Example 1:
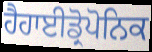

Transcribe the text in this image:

ਹੈਹਾਈਡ੍ਰੋਪੋਨਿਕ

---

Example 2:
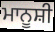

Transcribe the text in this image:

ਮਾਨੂਸ਼ੀ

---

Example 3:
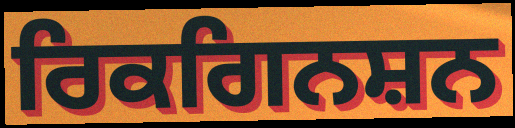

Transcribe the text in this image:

ਰਿਕਗਿਨਸ਼ਨ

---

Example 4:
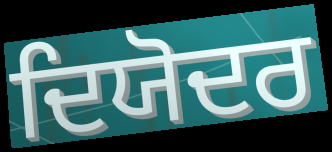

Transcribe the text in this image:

ਦਿਯੋਦਰ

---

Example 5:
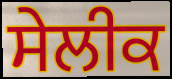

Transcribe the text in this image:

ਸੇਲੀਕ